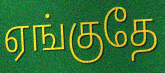
ஏங்குதே